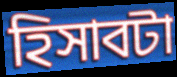
হিসাবটা